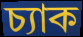
চ্যাক